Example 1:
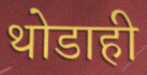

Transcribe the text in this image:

थोडाही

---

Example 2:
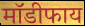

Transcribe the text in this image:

मॉडीफाय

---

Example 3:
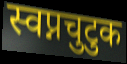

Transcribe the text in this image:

स्वप्नचुटुक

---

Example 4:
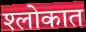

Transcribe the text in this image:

श्लोकात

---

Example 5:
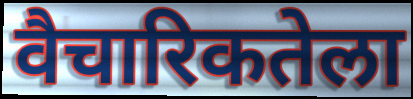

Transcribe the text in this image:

वैचारिकतेला